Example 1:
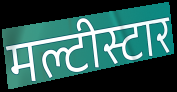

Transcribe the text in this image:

मल्टीस्टार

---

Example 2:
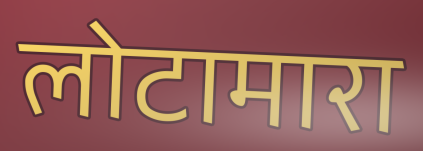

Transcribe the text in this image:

लोटामारा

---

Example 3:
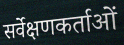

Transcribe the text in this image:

सर्वेक्षणकर्ताओं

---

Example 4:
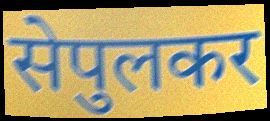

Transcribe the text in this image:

सेपुलकर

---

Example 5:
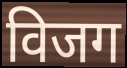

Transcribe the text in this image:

विजग